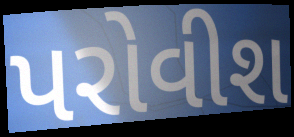
પરોવીશ